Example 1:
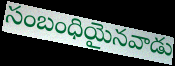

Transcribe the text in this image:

సంబంధియైనవాడు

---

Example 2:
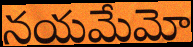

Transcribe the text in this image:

నయమేమో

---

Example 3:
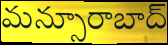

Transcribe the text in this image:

మన్సూరాబాద్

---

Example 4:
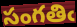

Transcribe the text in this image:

సంగతిఁ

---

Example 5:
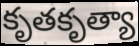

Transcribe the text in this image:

కృతకృత్యా